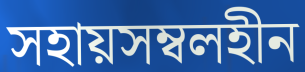
সহায়সম্বলহীন